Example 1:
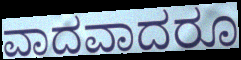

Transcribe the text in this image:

ವಾದವಾದರೂ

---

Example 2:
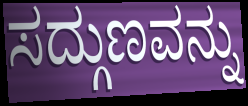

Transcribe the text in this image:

ಸದ್ಗುಣವನ್ನು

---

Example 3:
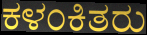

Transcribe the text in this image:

ಕಳಂಕಿತರು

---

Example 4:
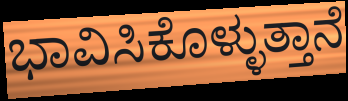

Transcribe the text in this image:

ಭಾವಿಸಿಕೊಳ್ಳುತ್ತಾನೆ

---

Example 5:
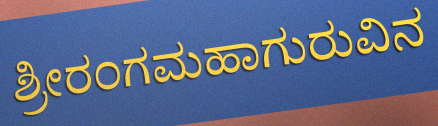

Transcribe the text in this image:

ಶ್ರೀರಂಗಮಹಾಗುರುವಿನ